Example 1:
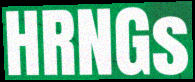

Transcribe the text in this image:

HRNGs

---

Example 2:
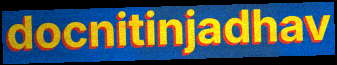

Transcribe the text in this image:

docnitinjadhav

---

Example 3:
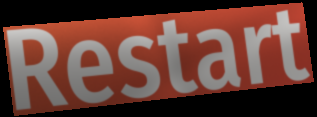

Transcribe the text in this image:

Restart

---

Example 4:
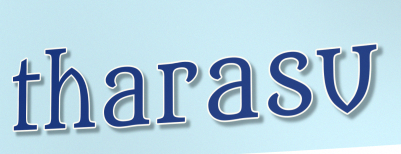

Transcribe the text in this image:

tharasu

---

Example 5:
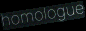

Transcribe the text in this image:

homologue